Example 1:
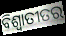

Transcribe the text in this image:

ବିଶ୍ଵାତୀତର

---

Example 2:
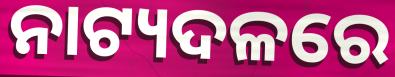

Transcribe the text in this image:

ନାଟ୍ୟଦଳରେ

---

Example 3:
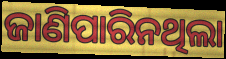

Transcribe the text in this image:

ଜାଣିପାରିନଥିଲା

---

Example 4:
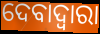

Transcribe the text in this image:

ଦେବାଦ୍ବାରା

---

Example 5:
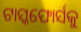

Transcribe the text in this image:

ଟାସ୍କଫୋର୍ସକୁ